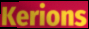
Kerions